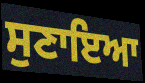
ਸੁਣਾਇਆ